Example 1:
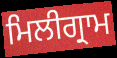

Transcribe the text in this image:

ਮਿਲੀਗ੍ਰਾਮ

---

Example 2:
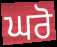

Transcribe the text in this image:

ਘਰੋ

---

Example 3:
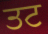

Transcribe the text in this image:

ਤਟ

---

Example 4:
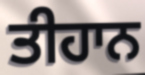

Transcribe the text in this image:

ਤੀਹਾਨ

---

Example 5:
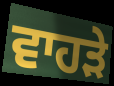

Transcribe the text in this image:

ਵਾਹੜੇ